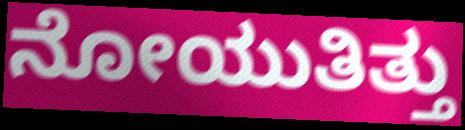
ನೋಯುತಿತ್ತು